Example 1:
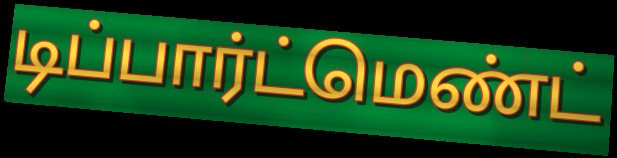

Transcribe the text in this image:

டிப்பார்ட்மெண்ட்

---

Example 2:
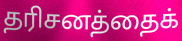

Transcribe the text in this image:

தரிசனத்தைக்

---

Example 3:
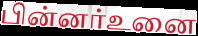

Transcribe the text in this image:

பின்னர்உனை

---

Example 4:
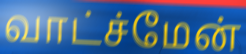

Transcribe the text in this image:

வாட்ச்மேன்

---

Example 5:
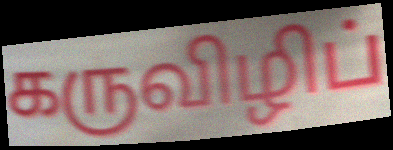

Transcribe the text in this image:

கருவிழிப்